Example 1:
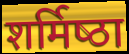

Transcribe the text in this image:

शर्मिष्‍ठा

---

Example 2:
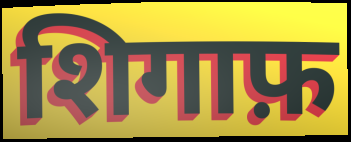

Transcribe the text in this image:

शिगाफ़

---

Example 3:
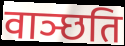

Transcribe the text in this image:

वाञ्छति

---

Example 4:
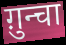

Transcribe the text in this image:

ग़ुन्चा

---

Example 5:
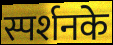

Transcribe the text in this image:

स्पर्शनके